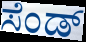
ಸೆಂಡ್